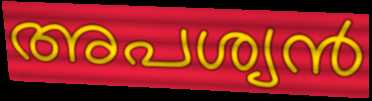
അപശ്യൻ